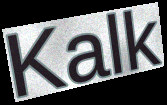
Kalk